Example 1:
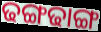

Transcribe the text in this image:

ଢଙ୍ଗଢାଙ୍ଗ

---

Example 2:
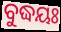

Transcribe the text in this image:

ବୁଦ୍ଧୟଃ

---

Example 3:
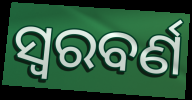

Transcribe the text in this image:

ସ୍ଵରବର୍ଣ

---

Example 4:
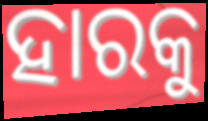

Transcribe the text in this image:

ହାରକୁ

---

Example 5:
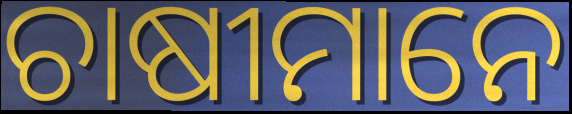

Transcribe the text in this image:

ଚାଷୀମାନେ